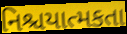
નિશ્ચયાત્મકતા